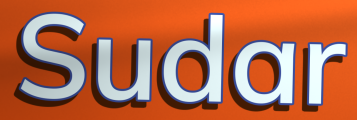
Sudar